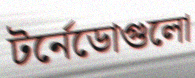
টর্নেডোগুলো